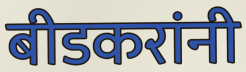
बीडकरांनी